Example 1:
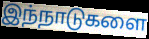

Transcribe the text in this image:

இந்நாடுகளை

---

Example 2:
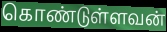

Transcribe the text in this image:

கொண்டுள்ளவன்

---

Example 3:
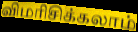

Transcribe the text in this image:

விமரிசிக்கலாம்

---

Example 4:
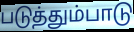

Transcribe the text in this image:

படுத்தும்பாடு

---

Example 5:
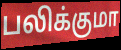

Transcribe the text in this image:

பலிக்குமா